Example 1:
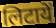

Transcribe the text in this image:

लिटायें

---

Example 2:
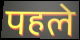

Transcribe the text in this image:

पहले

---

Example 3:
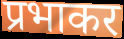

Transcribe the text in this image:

प्रभाकर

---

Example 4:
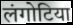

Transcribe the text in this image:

लंगोटिया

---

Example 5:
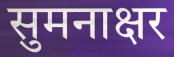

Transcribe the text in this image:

सुमनाक्षर